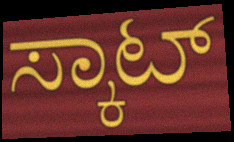
ಸ್ಕಾಟ್